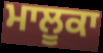
ਮਾਲੂਕਾ